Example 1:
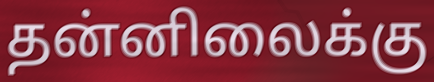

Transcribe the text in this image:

தன்னிலைக்கு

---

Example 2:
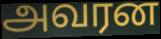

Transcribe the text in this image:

அவரன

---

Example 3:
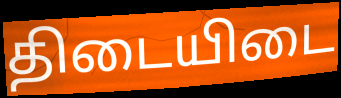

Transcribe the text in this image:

திடையிடை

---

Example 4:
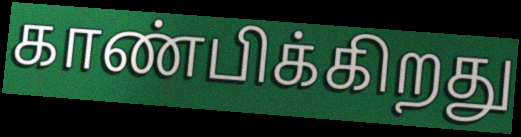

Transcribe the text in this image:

காண்பிக்கிறது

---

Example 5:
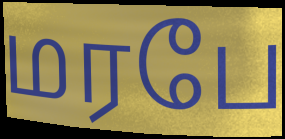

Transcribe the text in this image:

மரபே